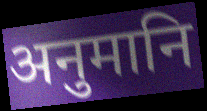
अनुमानि